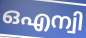
ഒഎന്വി